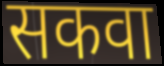
सकवा